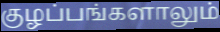
குழப்பங்களாலும்